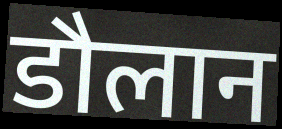
डौलान